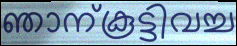
ഞാന്കൂട്ടിവച്ച